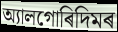
অ্যালগোৰিদিমৰ